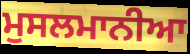
ਮੁਸਲਮਾਨੀਆ